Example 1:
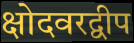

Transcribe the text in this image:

क्षोदवरद्वीप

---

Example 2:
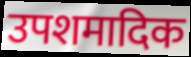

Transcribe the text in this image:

उपशमादिक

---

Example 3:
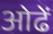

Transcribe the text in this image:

ओढें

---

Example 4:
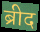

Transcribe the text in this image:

ब्रीद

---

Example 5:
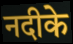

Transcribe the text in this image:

नदीके